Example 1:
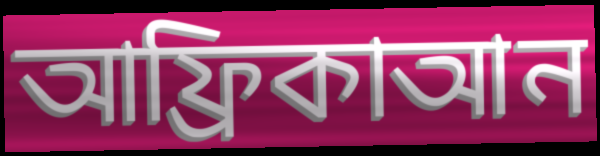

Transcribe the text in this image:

আফ্রিকাআন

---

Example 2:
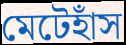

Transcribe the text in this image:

মেটেহাঁস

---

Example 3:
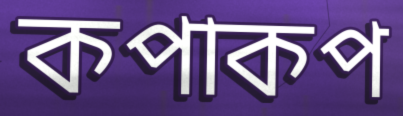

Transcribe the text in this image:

কপাকপ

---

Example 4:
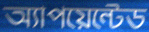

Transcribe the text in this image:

অ্যাপয়েন্টেড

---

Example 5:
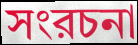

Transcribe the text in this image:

সংরচনা